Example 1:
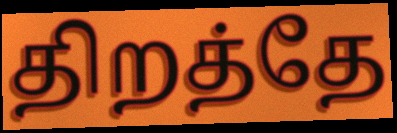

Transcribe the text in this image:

திறத்தே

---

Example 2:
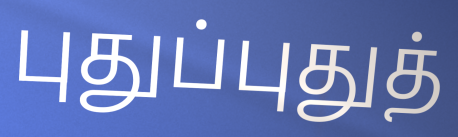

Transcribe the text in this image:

புதுப்புதுத்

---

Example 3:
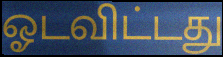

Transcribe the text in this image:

ஓடவிட்டது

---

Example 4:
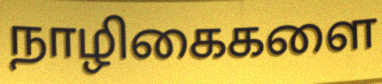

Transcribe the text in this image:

நாழிகைகளை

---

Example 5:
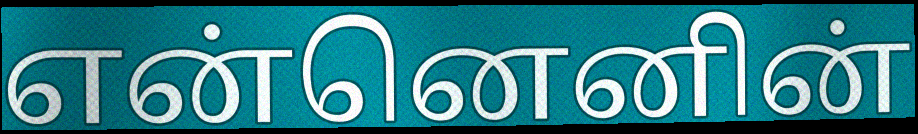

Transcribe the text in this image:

என்னெனின்